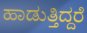
ಹಾಡುತ್ತಿದ್ದರೆ